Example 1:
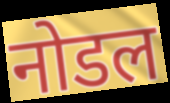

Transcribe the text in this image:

नोडल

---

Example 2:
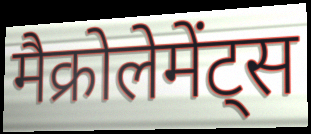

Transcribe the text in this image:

मैक्रोलेमेंट्स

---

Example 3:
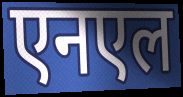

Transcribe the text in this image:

एनएल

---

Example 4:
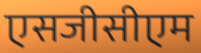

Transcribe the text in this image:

एसजीसीएम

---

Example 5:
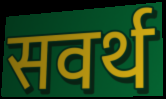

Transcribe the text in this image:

सवर्थ